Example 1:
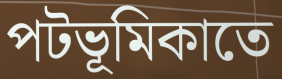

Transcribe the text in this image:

পটভূমিকাতে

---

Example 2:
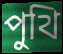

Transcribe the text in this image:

পুথি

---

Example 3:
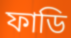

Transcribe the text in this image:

ফাডি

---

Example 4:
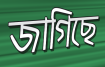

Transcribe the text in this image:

জাগিছে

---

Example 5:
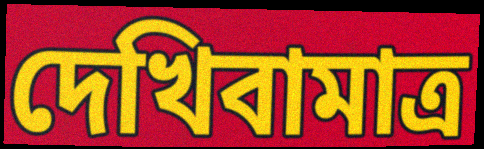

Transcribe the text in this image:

দেখিবামাত্র